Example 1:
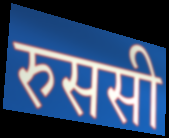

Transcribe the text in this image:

रुससी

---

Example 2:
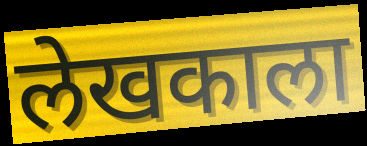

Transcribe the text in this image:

लेखकाला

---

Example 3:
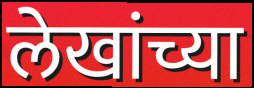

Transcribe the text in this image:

लेखांच्या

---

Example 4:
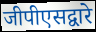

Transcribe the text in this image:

जीपीएसद्वारे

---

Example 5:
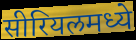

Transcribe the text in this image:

सीरियलमध्ये